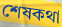
শেষকথা